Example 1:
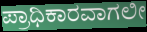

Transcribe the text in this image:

ಪ್ರಾಧಿಕಾರವಾಗಲೀ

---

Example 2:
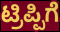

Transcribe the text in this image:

ಟ್ರಿಪ್ಪಿಗೆ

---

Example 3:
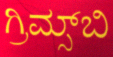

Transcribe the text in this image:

ಗ್ರಿಮ್ಸ್‌ಬಿ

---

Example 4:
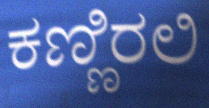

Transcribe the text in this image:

ಕಣ್ಣಿರಲಿ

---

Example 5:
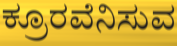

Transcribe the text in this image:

ಕ್ರೂರವೆನಿಸುವ